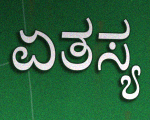
ಏತಸ್ಯ